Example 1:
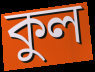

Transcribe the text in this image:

কুল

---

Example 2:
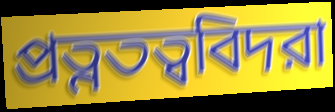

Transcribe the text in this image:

প্রত্নতত্ববিদরা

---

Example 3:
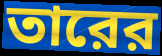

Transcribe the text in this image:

তারের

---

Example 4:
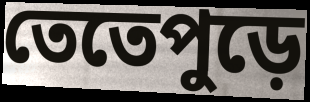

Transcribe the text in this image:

তেতেপুড়ে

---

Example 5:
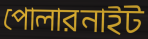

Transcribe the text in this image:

পোলারনাইট